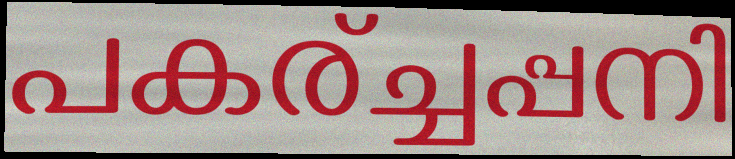
പകര്ച്ചപ്പനി